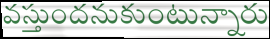
వస్తుందనుకుంటున్నారు